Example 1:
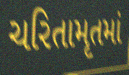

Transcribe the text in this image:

ચરિતામૃતમાં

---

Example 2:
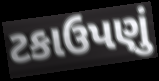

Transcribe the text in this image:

ટકાઉપણું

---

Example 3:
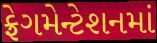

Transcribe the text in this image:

ફ્રેગમેન્ટેશનમાં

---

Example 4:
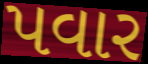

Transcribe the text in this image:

પવાર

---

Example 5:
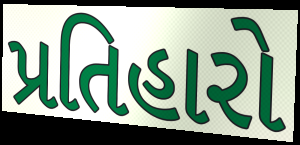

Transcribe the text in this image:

પ્રતિહારો